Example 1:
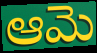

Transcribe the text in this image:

ఆమె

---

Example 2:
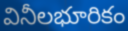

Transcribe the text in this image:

వినీలభూరికం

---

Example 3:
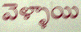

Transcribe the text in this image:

వెళ్ళాయి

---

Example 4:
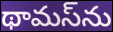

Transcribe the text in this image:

థామస్‌ను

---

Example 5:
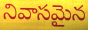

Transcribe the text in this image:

నివాసమైన